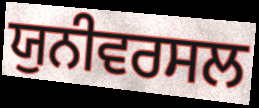
ਯੁਨੀਵਰਸਲ